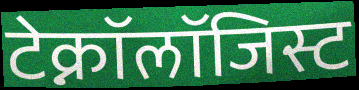
टेक्नॉलॉजिस्ट